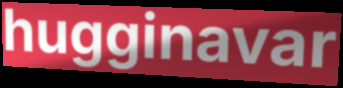
hugginavar